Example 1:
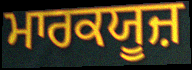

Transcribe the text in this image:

ਮਾਰਕਯੂਜ਼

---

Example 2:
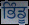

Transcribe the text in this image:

ਭਿੰਡੂ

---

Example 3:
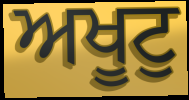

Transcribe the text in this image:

ਅਖੂਟੁ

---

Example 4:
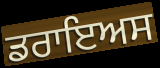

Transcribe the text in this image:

ਡਰਾਇਅਸ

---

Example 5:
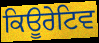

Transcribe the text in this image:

ਕਿਊਰੇਟਿਵ